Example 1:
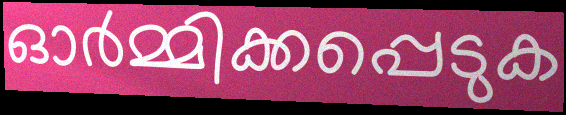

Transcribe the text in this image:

ഓർമ്മിക്കപ്പെടുക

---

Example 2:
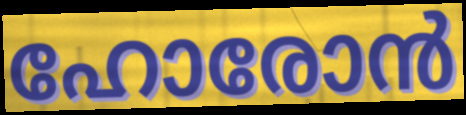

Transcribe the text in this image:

ഹോരോൻ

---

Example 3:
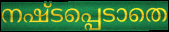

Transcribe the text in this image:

നഷ്ടപ്പെടാതെ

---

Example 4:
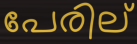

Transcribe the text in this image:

പേരില്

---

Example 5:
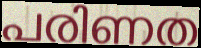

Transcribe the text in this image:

പരിണത